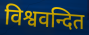
विश्ववन्दित